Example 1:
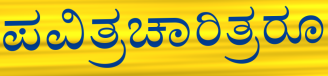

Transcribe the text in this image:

ಪವಿತ್ರಚಾರಿತ್ರರೂ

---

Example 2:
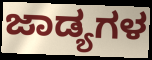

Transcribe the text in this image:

ಜಾಡ್ಯಗಳ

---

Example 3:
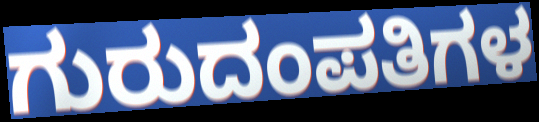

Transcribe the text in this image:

ಗುರುದಂಪತಿಗಳ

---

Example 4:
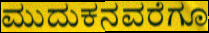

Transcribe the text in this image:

ಮುದುಕನವರೆಗೂ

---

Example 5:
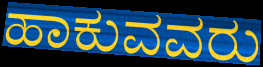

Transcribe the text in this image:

ಹಾಕುವವರು